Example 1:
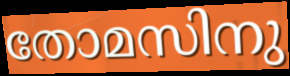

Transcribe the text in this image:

തോമസിനു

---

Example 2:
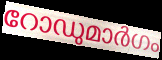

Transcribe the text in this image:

റോഡുമാർഗം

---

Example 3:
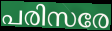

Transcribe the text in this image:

പരിസരേ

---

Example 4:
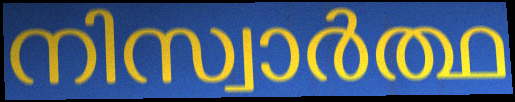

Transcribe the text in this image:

നിസ്വാർത്ഥ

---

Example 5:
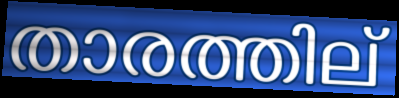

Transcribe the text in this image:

താരത്തില്